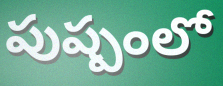
పుష్పంలో